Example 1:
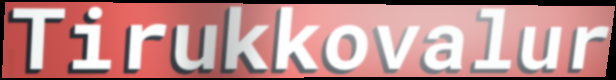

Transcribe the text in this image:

Tirukkovalur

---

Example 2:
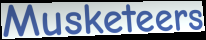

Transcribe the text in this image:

Musketeers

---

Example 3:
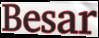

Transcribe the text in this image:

Besar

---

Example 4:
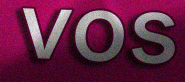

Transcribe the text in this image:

vos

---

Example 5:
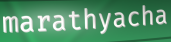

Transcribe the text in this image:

marathyacha